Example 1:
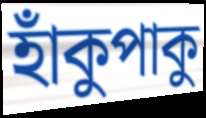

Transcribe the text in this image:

হাঁকুপাকু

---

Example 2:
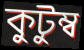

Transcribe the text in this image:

কুটুম্ব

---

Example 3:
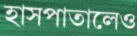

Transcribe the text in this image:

হাসপাতালেও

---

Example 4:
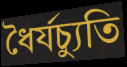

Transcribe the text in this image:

ধৈর্যচ্যুতি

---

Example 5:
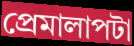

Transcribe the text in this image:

প্রেমালাপটা